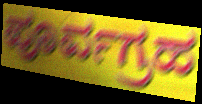
ಪೂರ್ವಗ್ರಹ